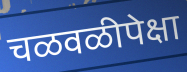
चळवळीपेक्षा